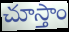
చూస్తాం